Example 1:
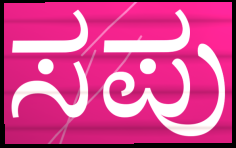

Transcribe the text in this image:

ಸಪು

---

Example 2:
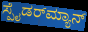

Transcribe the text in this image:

ಸ್ಪೈಡರ್‌ಮ್ಯಾನ್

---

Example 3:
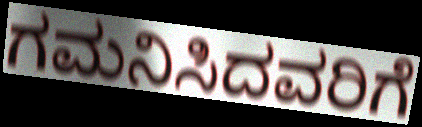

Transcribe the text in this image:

ಗಮನಿಸಿದವರಿಗೆ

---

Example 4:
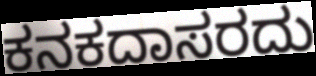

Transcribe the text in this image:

ಕನಕದಾಸರದು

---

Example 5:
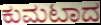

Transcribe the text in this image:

ಕುಮಟಾದ